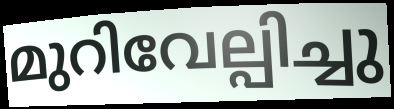
മുറിവേല്പിച്ചു